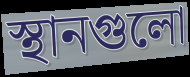
স্থানগুলো